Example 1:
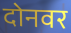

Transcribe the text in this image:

दोनवर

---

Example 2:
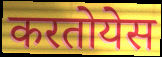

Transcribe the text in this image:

करतोयेस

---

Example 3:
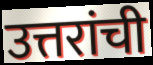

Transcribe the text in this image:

उत्तरांची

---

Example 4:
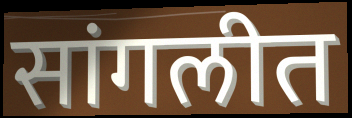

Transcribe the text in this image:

सांगलीत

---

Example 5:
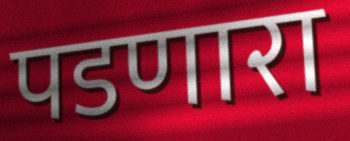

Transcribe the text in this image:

पडणारा